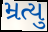
મ્રત્યુ